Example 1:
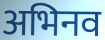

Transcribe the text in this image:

अभिनव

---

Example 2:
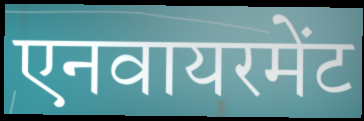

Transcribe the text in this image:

एनवायरमेंट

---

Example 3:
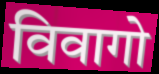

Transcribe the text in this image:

विवागो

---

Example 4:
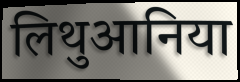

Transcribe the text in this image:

लिथुआनिया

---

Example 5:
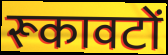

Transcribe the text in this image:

रूकावटों